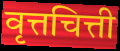
वृत्तचित्ती